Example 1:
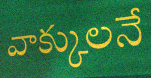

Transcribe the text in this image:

వాక్కులనే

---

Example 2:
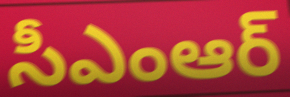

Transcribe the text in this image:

సీఎంఆర్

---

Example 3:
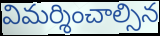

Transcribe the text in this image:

విమర్శించాల్సిన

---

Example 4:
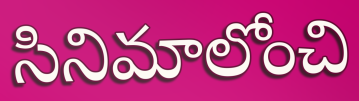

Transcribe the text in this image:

సినిమాలోంచి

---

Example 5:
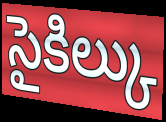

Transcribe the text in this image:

సైకిల్కు